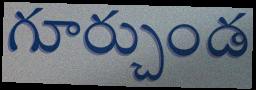
గూర్చుండ